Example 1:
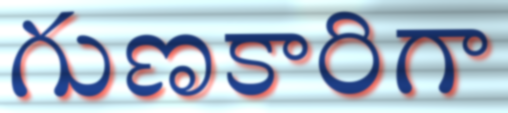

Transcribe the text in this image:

గుణకారిగా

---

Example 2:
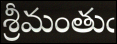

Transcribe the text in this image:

శ్రీమంతుఁ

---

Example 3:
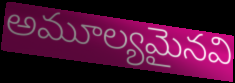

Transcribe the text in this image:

అమూల్యమైనవి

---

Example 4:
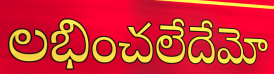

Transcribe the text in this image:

లభించలేదేమో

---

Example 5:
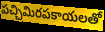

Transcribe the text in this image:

పచ్చిమిరపకాయలతో